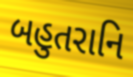
બહુતરાનિ